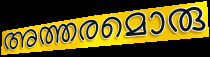
അത്തരമൊരു